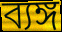
ব্যঙ্গ